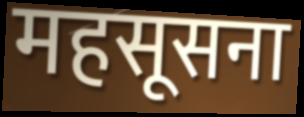
महसूसना